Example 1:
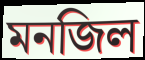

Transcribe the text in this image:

মনজিল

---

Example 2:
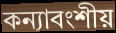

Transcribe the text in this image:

কন্যাবংশীয়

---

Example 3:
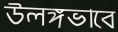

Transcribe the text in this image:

উলঙ্গভাবে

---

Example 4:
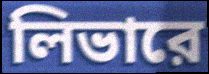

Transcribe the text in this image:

লিভারে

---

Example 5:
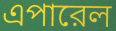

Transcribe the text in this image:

এপারেল